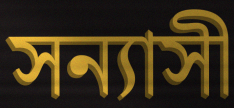
সন্যাসী